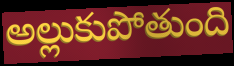
అల్లుకుపోతుంది